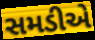
સમડીએ